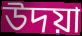
উদয়া